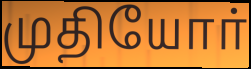
முதியோர்